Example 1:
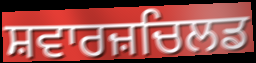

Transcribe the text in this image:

ਸ਼ਵਾਰਜ਼ਚਿਲਡ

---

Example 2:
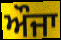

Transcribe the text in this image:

ਔਜਾ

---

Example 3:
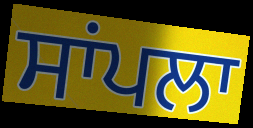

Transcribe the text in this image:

ਸਾਂਪਲਾ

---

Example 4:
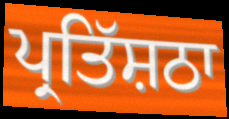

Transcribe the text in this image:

ਪ੍ਰਤਿੱਸ਼ਠਾ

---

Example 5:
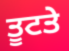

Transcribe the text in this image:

ਤੂਟਤੇ